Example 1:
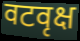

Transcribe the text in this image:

वटवृक्ष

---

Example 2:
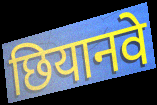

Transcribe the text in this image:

छियानवे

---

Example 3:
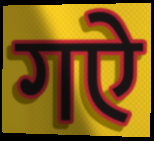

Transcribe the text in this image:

गऐ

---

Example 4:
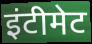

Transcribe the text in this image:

इंटीमेट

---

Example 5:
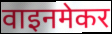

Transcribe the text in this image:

वाइनमेकर